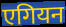
एगियन